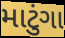
માટુંગા